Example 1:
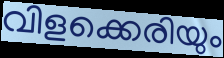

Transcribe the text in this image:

വിളക്കെരിയും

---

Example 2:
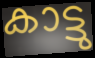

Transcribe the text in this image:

കാട്ടു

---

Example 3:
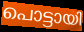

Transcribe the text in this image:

പൊട്ടായി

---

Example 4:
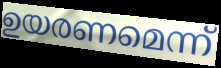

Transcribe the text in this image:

ഉയരണമെന്ന്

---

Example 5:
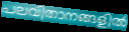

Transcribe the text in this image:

പലവിതാനങ്ങളിൽ